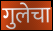
गुलेचा